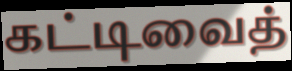
கட்டிவைத்